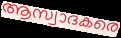
ആസ്വാദകരെ